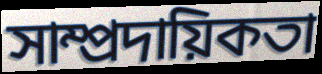
সাম্প্ৰদায়িকতা